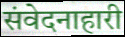
संवेदनाहारी